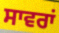
ਸਾਵਰਾਂ